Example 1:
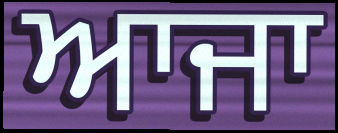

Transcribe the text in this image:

ਆਜਾ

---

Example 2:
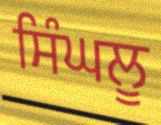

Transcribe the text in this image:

ਸਿੰਘਲੂ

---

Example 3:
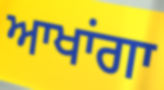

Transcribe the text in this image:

ਆਖਾਂਗਾ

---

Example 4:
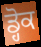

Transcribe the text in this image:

ਡ੍ਹੋਕ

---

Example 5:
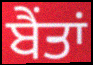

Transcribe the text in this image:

ਬੈਂਤਾਂ